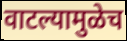
वाटल्यामुळेच